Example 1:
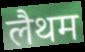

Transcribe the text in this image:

लैथम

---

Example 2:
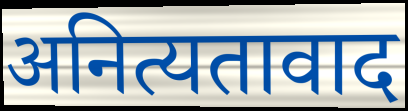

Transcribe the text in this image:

अनित्यतावाद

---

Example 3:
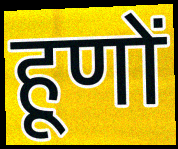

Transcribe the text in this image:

हूणों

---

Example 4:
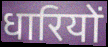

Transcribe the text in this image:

धारियों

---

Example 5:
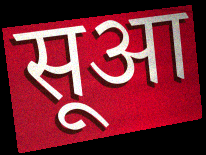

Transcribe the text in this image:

सूआ